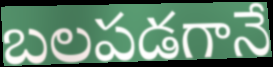
బలపడగానే